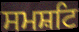
ਸਮਸ਼ਟਿ